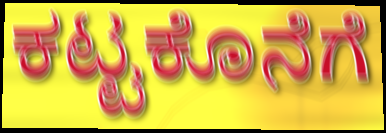
ಕಟ್ಟಕೊನೆಗೆ